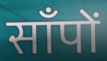
साँपों